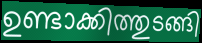
ഉണ്ടാക്കിത്തുടങ്ങി